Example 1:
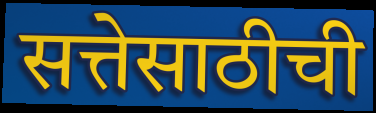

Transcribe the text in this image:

सत्तेसाठीची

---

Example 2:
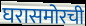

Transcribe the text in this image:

घरासमोरची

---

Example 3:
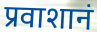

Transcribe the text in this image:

प्रवाशानं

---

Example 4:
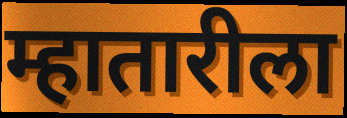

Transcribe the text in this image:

म्हातारीला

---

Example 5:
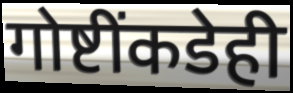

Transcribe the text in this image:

गोष्टींकडेही